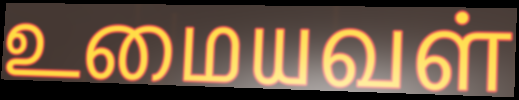
உமையவள்